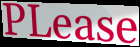
PLease